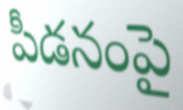
పీడనంపై